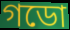
গডো